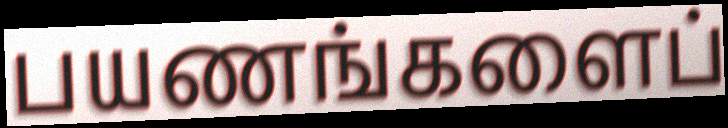
பயணங்களைப்